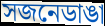
সজনেডাঙা